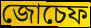
জোচেফ